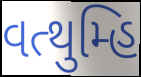
વત્થુમ્હિ